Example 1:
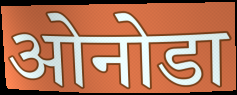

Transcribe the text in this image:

ओनोडा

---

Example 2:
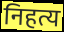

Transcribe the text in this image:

निहत्य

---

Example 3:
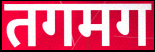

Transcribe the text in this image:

तगमग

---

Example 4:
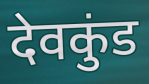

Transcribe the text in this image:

देवकुंड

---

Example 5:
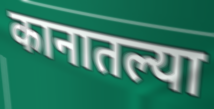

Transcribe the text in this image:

कानातल्या